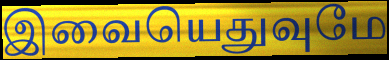
இவையெதுவுமே